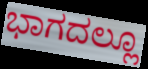
ಭಾಗದಲ್ಲೂ